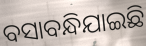
ବସାବନ୍ଧିଯାଇଛି